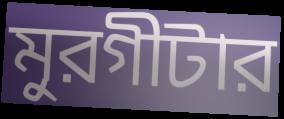
মুরগীটার